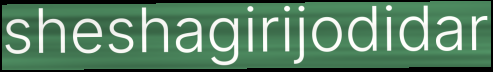
sheshagirijodidar